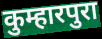
कुम्हारपुरा